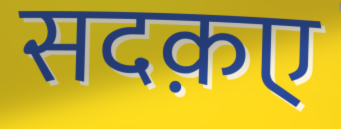
सदक़ए